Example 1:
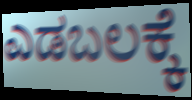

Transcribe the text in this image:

ಎಡಬಲಕ್ಕೆ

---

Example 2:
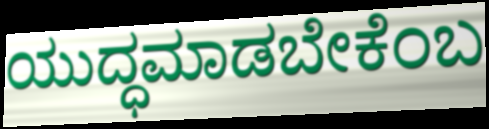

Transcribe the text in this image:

ಯುದ್ಧಮಾಡಬೇಕೆಂಬ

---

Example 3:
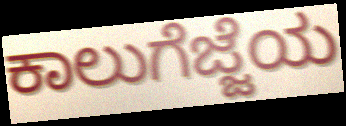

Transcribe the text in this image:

ಕಾಲುಗೆಜ್ಜೆಯ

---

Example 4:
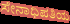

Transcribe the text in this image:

ಸೇನಾಧಿಪತಿಯ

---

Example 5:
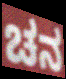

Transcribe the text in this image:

ಚನ